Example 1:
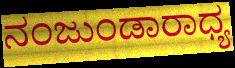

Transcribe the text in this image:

ನಂಜುಂಡಾರಾಧ್ಯ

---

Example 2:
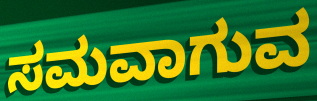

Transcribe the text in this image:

ಸಮವಾಗುವ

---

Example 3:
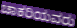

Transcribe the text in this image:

ಚಾಕರಿಯವರು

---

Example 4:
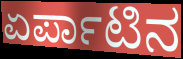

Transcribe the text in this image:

ಏರ್ಪಾಟಿನ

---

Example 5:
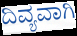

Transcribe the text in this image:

ದಿವ್ಯವಾಗಿ